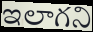
ఇలాగని